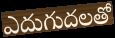
ఎదుగుదలతో